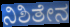
ನಿಶಿತೇನ